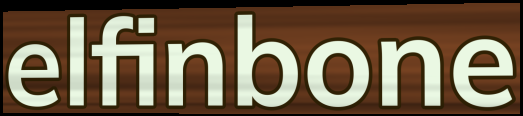
elfinbone